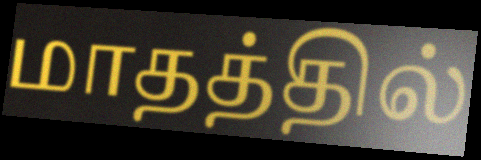
மாதத்தில்